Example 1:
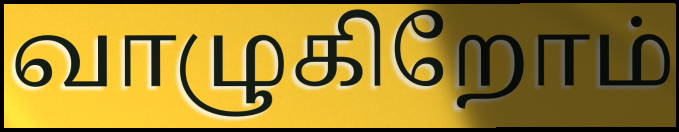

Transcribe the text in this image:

வாழுகிறோம்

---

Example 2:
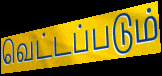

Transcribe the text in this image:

வெட்டப்படும்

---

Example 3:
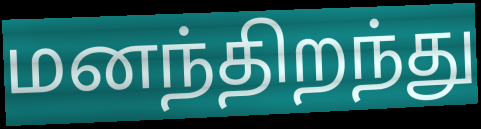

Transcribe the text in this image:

மனந்திறந்து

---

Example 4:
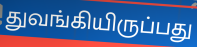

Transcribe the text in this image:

துவங்கியிருப்பது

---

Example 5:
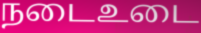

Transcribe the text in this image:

நடைஉடை